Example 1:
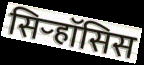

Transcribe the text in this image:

सिऱ्हॉसिस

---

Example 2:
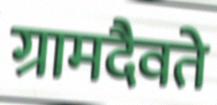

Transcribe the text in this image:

ग्रामदैवते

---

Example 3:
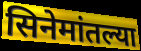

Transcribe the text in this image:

सिनेमांतल्या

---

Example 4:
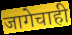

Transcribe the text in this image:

जागेचाही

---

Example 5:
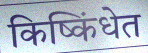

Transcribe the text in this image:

किष्किंधेत